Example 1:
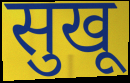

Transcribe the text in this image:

सुखू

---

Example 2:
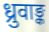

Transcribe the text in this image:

ध्रुवाङ्क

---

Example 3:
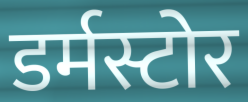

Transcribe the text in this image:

डर्मस्टोर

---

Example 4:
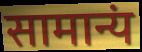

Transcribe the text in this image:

सामान्यं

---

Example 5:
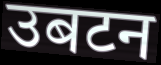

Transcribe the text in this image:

उबटन